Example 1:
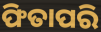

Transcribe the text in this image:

ଫିତାପରି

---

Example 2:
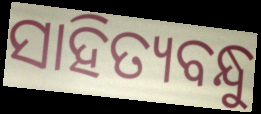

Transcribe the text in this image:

ସାହିତ୍ୟବନ୍ଧୁ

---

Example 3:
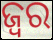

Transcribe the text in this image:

ଜ୍ଵର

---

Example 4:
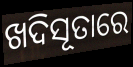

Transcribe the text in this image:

ଖଦିସୂତାରେ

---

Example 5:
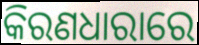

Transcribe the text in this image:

କିରଣଧାରାରେ